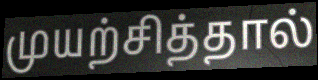
முயற்சித்தால்